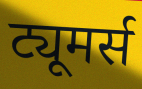
ट्यूमर्स